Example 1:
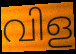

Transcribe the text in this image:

വിള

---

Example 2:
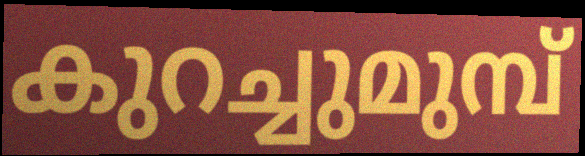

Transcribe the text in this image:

കുറച്ചുമുമ്പ്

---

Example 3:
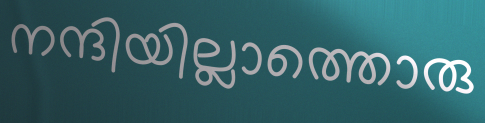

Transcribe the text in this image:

നന്ദിയില്ലാത്തൊരു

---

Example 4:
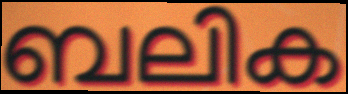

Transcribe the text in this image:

ബലിക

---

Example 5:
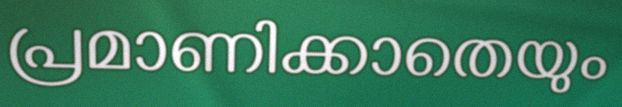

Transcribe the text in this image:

പ്രമാണിക്കാതെയും